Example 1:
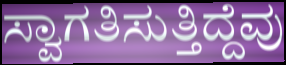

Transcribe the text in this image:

ಸ್ವಾಗತಿಸುತ್ತಿದ್ದೆವು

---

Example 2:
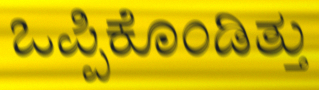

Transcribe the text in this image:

ಒಪ್ಪಿಕೊಂಡಿತ್ತು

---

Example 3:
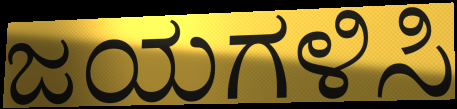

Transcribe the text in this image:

ಜಯಗಳಿಸಿ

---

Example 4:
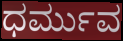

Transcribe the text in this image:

ಧರ್ಮುವ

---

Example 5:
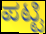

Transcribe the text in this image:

ಪಟ್ಟಿ